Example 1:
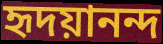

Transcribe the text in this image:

হৃদয়ানন্দ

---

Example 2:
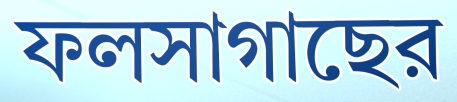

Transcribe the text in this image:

ফলসাগাছের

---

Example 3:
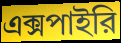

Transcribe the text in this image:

এক্সপাইরি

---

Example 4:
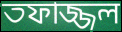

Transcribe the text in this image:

তফাজ্জল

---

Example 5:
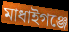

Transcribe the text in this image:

মাধাইগঞ্জে